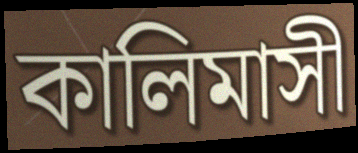
কালিমাসী